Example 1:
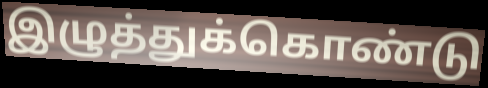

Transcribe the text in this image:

இழுத்துக்கொண்டு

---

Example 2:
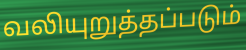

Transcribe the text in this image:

வலியுறுத்தப்படும்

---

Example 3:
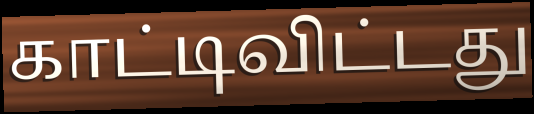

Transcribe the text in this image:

காட்டிவிட்டது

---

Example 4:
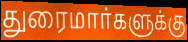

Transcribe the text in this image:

துரைமார்களுக்கு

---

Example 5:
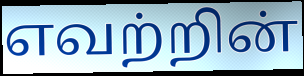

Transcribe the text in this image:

எவற்றின்